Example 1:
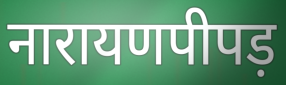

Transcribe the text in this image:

नारायणपीपड़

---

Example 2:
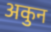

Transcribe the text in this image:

अकुन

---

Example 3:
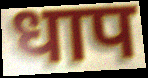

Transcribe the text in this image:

धाप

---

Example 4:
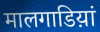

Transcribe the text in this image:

मालगाडिय़ां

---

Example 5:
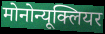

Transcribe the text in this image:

मोनोन्यूक्लियर